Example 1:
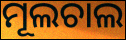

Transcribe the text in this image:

ମୂଲଚାଲ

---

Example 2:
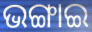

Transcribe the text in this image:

ଭଙ୍ଗାଇ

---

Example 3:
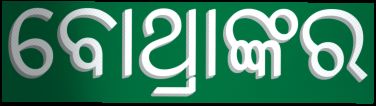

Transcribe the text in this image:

ବୋଥ୍ରାଙ୍କର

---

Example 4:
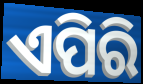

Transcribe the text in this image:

ଏପିରି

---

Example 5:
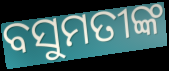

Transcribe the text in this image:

ବସୁମତୀଙ୍କ